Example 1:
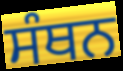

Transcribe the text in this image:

ਸੰਥਨ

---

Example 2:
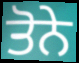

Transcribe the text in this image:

ਤੋਨੇ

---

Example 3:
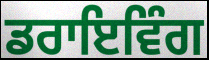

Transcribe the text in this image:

ਡਰਾਇਵਿੰਗ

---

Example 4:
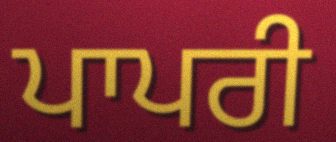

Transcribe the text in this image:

ਪਾਪਰੀ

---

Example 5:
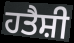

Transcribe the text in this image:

ਹਤੈਸ਼ੀ